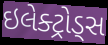
ઇલેક્ટ્રોડ્સ